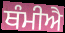
ਥੰਮੀਐ